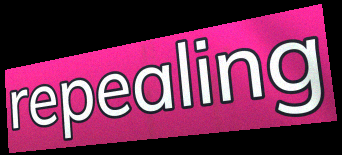
repealing